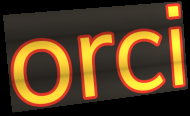
orci